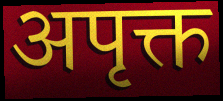
अपृक्त